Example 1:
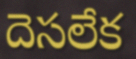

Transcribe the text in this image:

దెసలేక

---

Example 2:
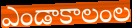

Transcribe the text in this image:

ఎండాకాలంల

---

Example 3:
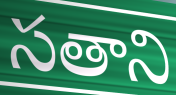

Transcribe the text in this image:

సతాని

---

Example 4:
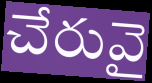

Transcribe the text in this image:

చేరువై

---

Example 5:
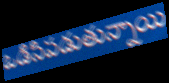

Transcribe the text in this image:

ఒడిసిపడుతున్నాయి